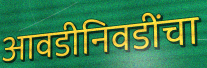
आवडीनिवडींचा